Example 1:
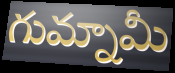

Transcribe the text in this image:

గుమ్నామీ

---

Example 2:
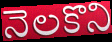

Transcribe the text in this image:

నెలకొని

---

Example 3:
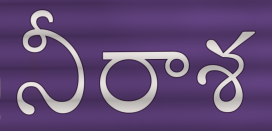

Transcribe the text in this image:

నీరాశ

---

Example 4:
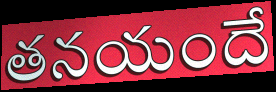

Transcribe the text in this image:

తనయందే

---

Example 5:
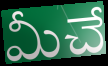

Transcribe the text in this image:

మీచే